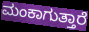
ಮಂಕಾಗುತ್ತಾರೆ